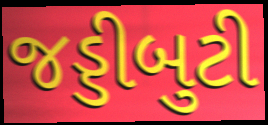
જડ્ડીબુટી